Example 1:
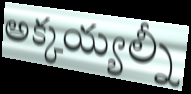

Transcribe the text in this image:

అక్కయ్యల్నీ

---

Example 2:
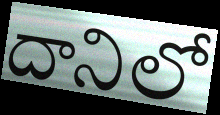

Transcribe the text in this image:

దానిలో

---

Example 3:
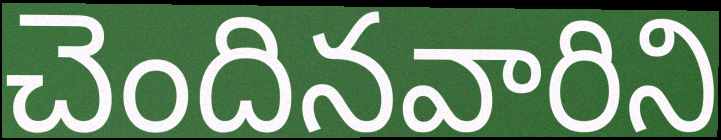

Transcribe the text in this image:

చెందినవారిని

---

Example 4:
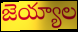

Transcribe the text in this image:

జెయ్యాల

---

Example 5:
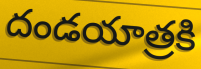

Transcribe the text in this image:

దండయాత్రకి